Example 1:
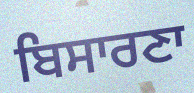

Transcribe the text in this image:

ਬਿਸਾਰਣਾ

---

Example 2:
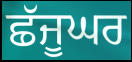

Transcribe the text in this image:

ਛੱਜੂਘਰ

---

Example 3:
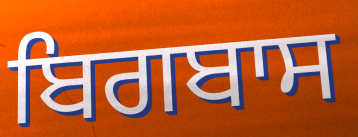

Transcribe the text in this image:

ਬਿਗਬਾਸ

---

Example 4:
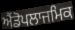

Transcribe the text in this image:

ਐਂਡੋਪਲਾਜਮਿਕ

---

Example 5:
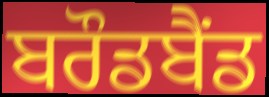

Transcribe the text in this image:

ਬਰੌਡਬੈਂਡ